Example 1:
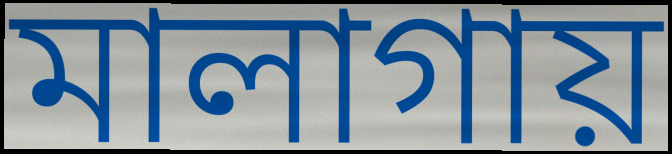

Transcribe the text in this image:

মালাগায়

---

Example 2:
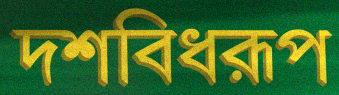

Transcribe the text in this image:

দশবিধরূপ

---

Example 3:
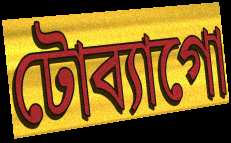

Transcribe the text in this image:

টোব্যাগো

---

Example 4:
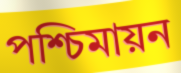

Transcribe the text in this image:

পশ্চিমায়ন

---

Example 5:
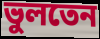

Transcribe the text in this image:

ভুলতেন